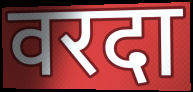
वरदा